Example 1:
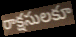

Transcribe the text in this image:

రాక్షసులకూ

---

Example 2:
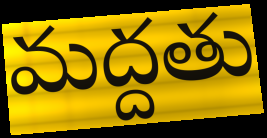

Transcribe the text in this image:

మద్దతు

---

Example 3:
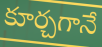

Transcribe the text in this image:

కూర్చగానే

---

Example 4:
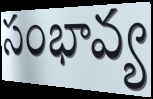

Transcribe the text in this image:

సంభావ్య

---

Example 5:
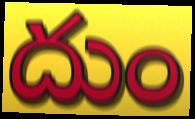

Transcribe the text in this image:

దుం